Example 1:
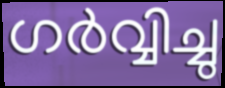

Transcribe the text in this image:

ഗർവ്വിച്ചു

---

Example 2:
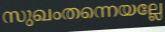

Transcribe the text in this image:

സുഖംതന്നെയല്ലേ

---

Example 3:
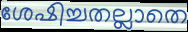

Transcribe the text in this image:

ശേഷിച്ചതല്ലാതെ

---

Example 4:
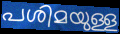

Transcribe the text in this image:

പശിമയുള്ള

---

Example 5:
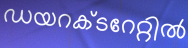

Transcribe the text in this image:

ഡയറക്ടറേറ്റിൽ